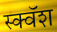
स्क्वॅश